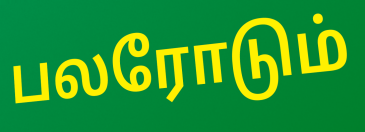
பலரோடும்